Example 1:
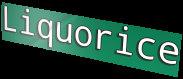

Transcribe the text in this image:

Liquorice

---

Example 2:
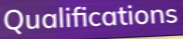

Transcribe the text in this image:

Qualifications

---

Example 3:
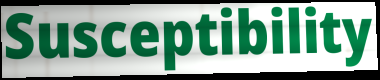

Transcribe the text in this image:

Susceptibility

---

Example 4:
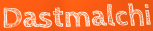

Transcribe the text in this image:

Dastmalchi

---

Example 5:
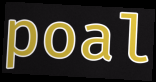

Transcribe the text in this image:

poal